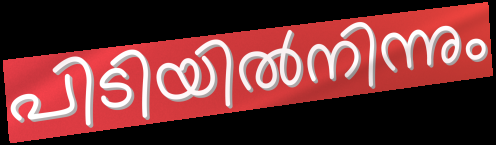
പിടിയിൽനിന്നും